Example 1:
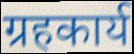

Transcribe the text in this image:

ग्रहकार्य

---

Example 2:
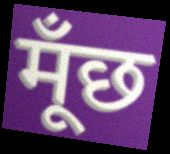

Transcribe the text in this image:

मूँछ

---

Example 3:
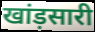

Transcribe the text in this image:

खांड़सारी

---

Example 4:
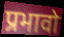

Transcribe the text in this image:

प्रभावो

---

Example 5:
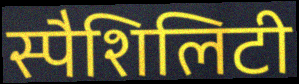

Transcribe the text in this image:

स्पैशिलिटी